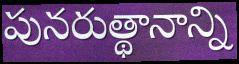
పునరుత్థానాన్ని